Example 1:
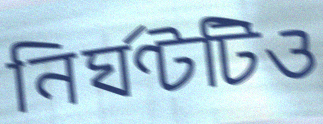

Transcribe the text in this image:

নির্ঘণ্টটিও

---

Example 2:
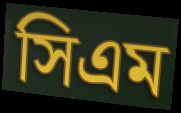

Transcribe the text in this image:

সিএম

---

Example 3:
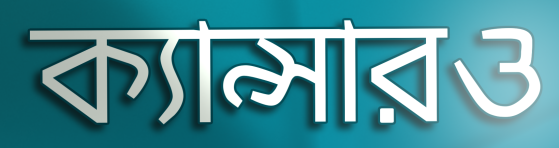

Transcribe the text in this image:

ক্যান্সারও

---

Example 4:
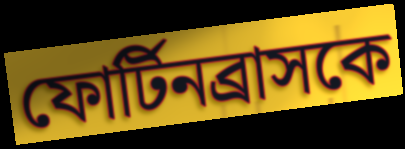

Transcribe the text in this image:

ফোর্টিনব্রাসকে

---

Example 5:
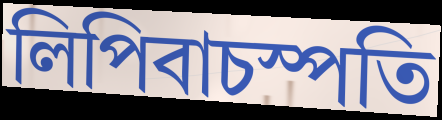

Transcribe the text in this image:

লিপিবাচস্পতি